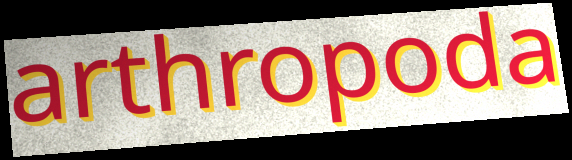
arthropoda